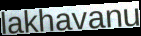
lakhavanu